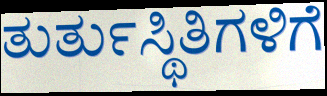
ತುರ್ತುಸ್ಥಿತಿಗಳಿಗೆ